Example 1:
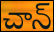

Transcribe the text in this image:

చాన్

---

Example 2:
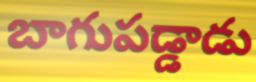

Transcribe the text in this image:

బాగుపడ్డాడు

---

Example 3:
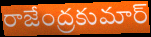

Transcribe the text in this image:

రాజేంద్రకుమార్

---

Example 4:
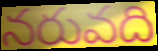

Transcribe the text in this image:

నరువది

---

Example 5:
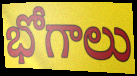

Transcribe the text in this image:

భోగాలు